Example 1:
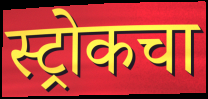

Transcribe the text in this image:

स्ट्रोकचा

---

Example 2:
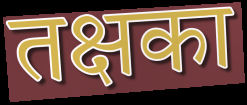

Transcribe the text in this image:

तक्षका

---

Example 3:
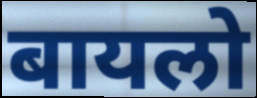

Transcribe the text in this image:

बायलो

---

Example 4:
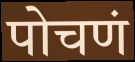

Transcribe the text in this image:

पोचणं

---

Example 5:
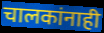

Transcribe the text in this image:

चालकांनाही